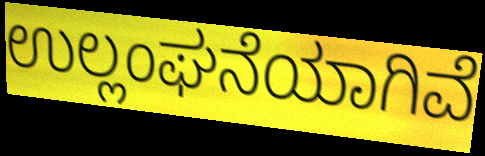
ಉಲ್ಲಂಘನೆಯಾಗಿವೆ